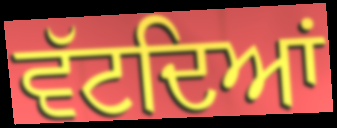
ਵੱਟਦਿਆਂ